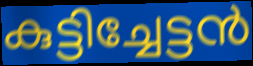
കുട്ടിച്ചേട്ടൻ